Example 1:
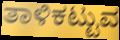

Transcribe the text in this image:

ತಾಳಿಕಟ್ಟುವ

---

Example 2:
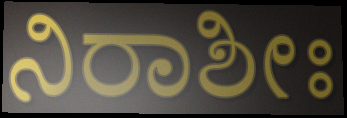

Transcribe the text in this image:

ನಿರಾಶೀಃ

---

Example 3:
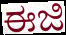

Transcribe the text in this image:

ಈಜಿ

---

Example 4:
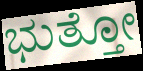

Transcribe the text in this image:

ಭುತ್ತೋ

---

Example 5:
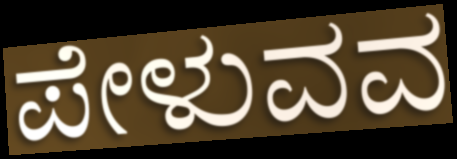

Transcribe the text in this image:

ಪೇಳುವವ